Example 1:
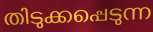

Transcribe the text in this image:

തിടുക്കപ്പെടുന്ന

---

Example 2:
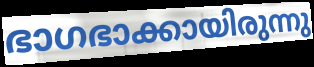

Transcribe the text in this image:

ഭാഗഭാക്കായിരുന്നു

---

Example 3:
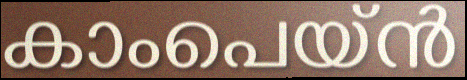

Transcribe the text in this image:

കാംപെയ്ൻ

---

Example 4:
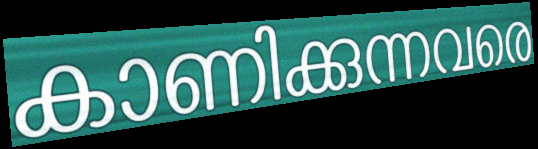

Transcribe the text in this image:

കാണിക്കുന്നവരെ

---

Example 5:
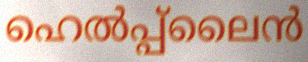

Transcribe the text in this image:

ഹെൽപ്പ്ലൈൻ